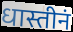
धास्तीनं